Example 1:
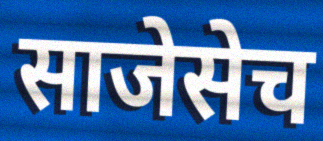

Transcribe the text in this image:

साजेसेच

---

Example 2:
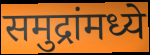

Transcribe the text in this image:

समुद्रांमध्ये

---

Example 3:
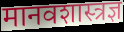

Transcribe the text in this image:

मानवशास्त्रज्ञ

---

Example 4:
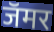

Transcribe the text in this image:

जॅमर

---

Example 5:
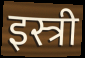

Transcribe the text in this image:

इस्त्री